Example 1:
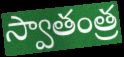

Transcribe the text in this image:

స్వాతంత్ర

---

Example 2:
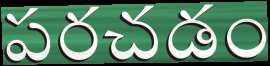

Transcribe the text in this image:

పరచడం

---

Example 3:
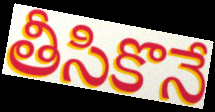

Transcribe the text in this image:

తీసికొనే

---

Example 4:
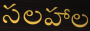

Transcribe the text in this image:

సలహాల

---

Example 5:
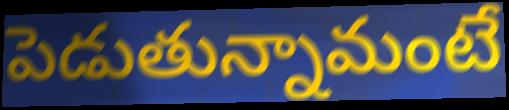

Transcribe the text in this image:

పెడుతున్నామంటే